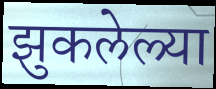
झुकलेल्या